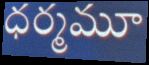
ధర్మమూ